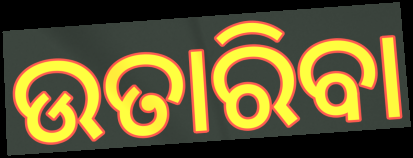
ଉତାରିବା